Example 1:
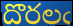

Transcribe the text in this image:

దొరలఁ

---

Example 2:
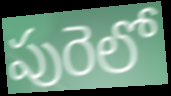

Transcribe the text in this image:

పురెలో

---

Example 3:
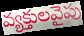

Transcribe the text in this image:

వ్యక్తులవైపు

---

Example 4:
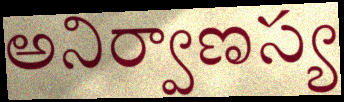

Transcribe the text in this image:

అనిర్వాణస్య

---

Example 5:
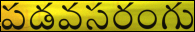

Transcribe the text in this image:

పడవసరంగు